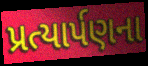
પ્રત્યાર્પણના